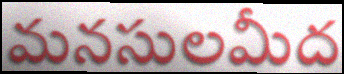
మనసులమీద